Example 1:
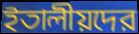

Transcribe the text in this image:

ইতালীয়দের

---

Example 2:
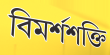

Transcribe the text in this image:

বিমর্শশক্তি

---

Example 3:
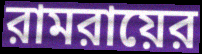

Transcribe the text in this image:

রামরায়ের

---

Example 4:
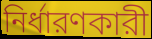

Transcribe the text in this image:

নির্ধারণকারী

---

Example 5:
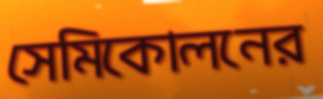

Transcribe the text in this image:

সেমিকোলনের